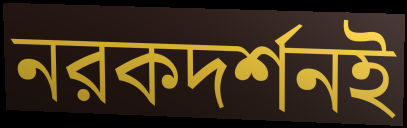
নরকদর্শনই